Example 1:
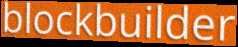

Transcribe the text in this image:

blockbuilder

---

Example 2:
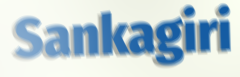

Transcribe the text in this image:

Sankagiri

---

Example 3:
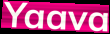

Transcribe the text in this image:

Yaava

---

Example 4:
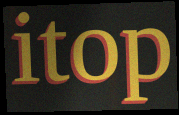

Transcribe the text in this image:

itop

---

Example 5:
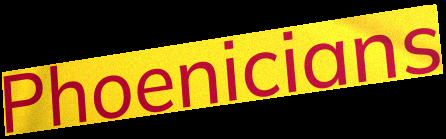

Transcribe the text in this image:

Phoenicians